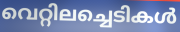
വെറ്റിലച്ചെടികൾ